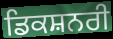
ਡਿਕਸ਼ਨਰੀ